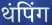
थंपिंग